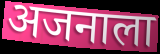
अजनाला